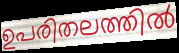
ഉപരിതലത്തിൽ